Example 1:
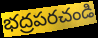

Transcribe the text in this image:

భద్రపరచండి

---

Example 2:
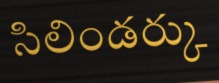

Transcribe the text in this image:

సిలిండర్కు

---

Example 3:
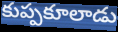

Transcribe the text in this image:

కుప్పకూలాడు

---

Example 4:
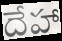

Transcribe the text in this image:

దేహా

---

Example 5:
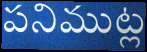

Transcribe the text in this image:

పనిముట్ల